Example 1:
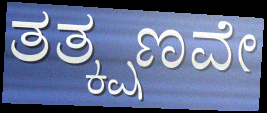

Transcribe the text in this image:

ತತ್ಕ್ಷಣವೇ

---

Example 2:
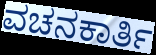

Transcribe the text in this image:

ವಚನಕಾರ್ತಿ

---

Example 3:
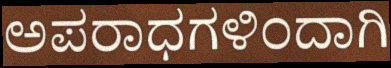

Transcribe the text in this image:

ಅಪರಾಧಗಳಿಂದಾಗಿ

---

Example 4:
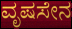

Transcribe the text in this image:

ವೃಷಸೇನ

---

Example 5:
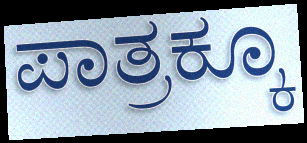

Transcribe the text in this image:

ಪಾತ್ರಕ್ಕೂ